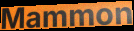
Mammon